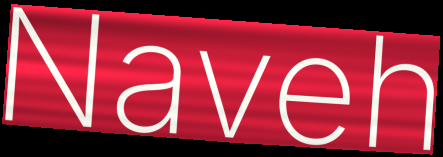
Naveh